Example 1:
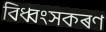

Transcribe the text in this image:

বিধ্বংসকৰণ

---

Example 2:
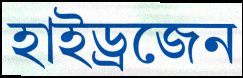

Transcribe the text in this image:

হাইড্ৰজেন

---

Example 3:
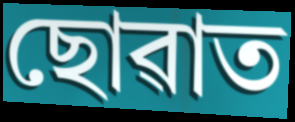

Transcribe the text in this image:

ছোৱাত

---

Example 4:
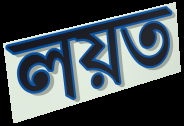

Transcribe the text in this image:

লয়ত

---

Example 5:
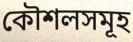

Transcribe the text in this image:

কৌশলসমূহ